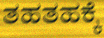
ತಹತಹಕ್ಕೆ